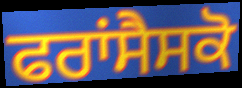
ਫਰਾਂਸੈਸਕੋ